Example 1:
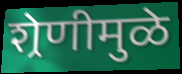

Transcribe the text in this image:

श्रेणीमुळे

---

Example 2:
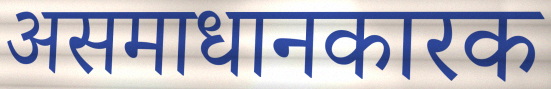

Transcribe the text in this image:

असमाधानकारक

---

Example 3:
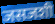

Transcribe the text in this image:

जसजशी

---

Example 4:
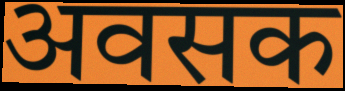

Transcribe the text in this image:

अवसक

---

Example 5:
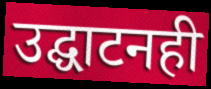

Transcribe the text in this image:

उद्घाटनही